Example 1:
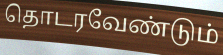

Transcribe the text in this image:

தொடரவேண்டும்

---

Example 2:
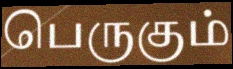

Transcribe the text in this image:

பெருகும்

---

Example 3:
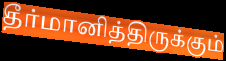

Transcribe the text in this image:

தீர்மானித்திருக்கும்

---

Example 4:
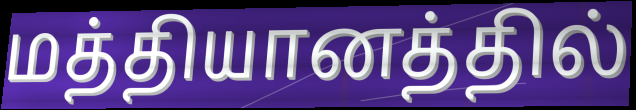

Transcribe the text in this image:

மத்தியானத்தில்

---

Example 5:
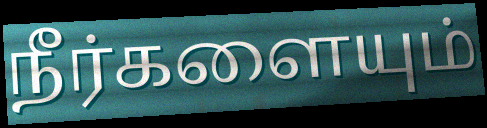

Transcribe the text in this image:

நீர்களையும்